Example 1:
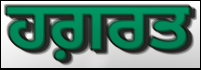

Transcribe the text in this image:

ਹਗ਼ਰਤ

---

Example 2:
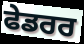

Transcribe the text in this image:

ਫੇਡਰਰ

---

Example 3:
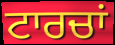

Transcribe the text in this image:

ਟਾਰਚਾਂ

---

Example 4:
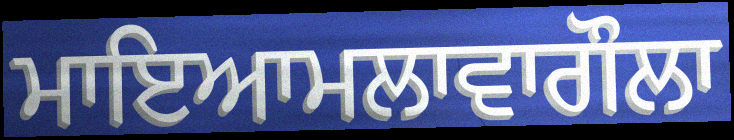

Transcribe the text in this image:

ਮਾਇਆਮਲਾਵਾਗੌਲਾ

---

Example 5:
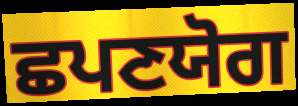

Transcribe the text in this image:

ਛਪਣਯੋਗ